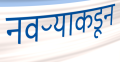
नवऱ्याकडून